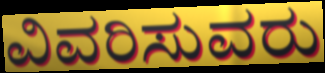
ವಿವರಿಸುವರು